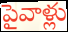
పైవాళ్లు